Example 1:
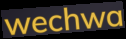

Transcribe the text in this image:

wechwa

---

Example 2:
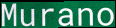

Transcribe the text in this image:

Murano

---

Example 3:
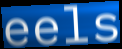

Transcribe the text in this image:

eels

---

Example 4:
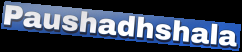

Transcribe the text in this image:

Paushadhshala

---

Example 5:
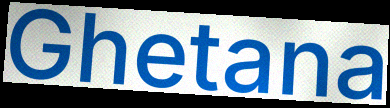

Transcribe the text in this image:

Ghetana